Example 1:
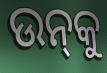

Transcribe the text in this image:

ଉନ୍‌କୁ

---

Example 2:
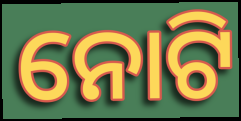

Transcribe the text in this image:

ନୋଟି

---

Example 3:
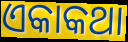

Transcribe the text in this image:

ଏକାକଥା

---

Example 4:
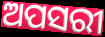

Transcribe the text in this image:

ଅପସରୀ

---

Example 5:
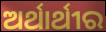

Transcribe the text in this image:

ଅର୍ଥାର୍ଥୀର